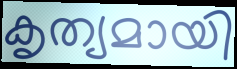
കൃത്യമായി